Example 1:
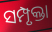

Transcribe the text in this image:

ସମ୍ପୃକ୍ତା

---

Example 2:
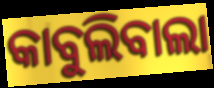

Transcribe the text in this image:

କାବୁଲିବାଲା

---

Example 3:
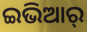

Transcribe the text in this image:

ଇଭିଆର୍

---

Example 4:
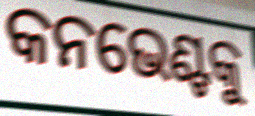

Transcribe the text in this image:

କନଭେଣ୍ଟକୁ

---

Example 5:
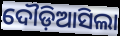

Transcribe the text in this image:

ଦୌଡ଼ିଆସିଲା